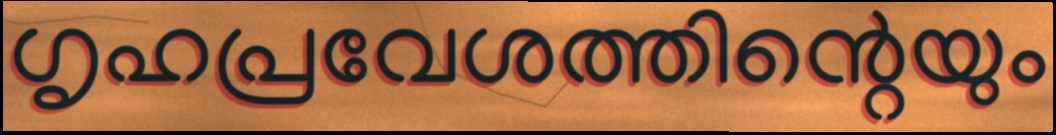
ഗൃഹപ്രവേശത്തിന്റെയും